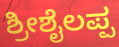
ಶ್ರೀಶೈಲಪ್ಪ